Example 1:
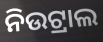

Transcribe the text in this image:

ନିଉଟ୍ରାଲ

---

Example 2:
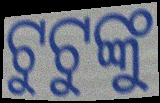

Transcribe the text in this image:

ଟୁଟୁଙ୍କୁ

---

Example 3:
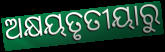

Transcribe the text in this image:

ଅକ୍ଷୟତୃତୀୟାରୁ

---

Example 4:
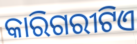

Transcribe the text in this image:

କାରିଗରୀଟିଏ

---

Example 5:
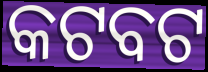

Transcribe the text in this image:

କଟବଟ